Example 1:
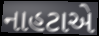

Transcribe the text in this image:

નાહટાએ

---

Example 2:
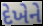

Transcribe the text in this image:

દેખેને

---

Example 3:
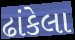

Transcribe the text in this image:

ઢાંકેલા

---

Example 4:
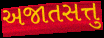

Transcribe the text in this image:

અજાતસત્તુ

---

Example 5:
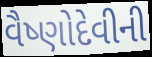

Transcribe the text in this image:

વૈષ્ણોદેવીની